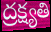
ద్రక్ష్యతి